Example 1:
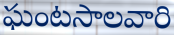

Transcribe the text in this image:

ఘంటసాలవారి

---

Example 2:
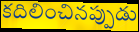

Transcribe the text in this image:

కదిలించినప్పుడు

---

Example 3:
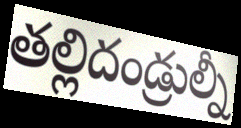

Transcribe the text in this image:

తల్లిదండ్రుల్నీ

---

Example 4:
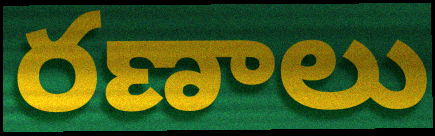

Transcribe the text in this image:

రణాలు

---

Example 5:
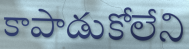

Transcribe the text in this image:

కాపాడుకోలేని